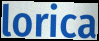
lorica